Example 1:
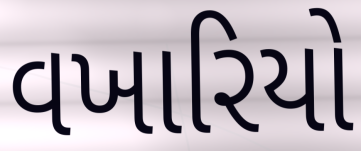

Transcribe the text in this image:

વખારિયો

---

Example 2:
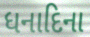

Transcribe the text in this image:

ધનાદિના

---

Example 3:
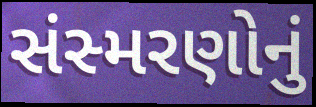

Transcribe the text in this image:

સંસ્મરણોનું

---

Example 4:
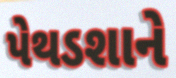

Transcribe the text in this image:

પેથડશાને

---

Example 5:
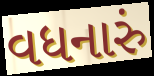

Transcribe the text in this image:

વધનારું